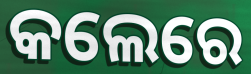
କଲେରେ